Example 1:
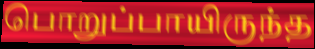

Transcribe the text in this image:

பொறுப்பாயிருந்த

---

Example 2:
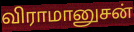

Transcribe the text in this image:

விராமானுசன்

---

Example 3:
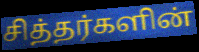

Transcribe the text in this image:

சித்தர்களின்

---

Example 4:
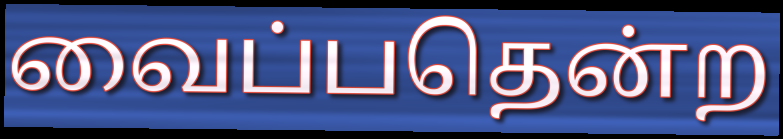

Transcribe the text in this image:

வைப்பதென்ற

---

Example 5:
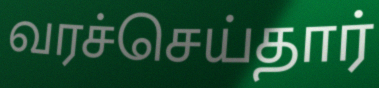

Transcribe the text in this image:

வரச்செய்தார்